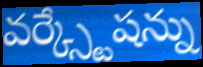
వర్క్స్టేషన్ను